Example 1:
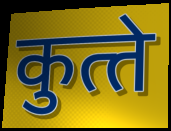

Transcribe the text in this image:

कुत्‍ते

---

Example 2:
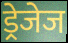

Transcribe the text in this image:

ड्रेजेज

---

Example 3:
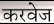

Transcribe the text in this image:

करवेज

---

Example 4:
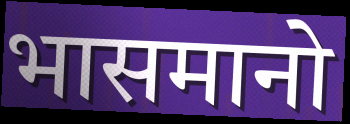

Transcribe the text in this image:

भासमानो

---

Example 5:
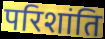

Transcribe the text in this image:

परिशांति